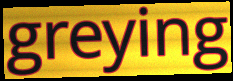
greying